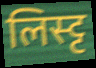
लिस्ट्ट